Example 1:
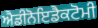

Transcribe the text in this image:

ਐਡੀਨੋਇਡੈਕਟੋਮੀ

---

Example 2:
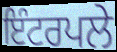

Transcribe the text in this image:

ਇੰਟਰਪਲੇ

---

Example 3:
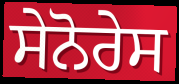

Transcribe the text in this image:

ਸੇਨੋਰੇਸ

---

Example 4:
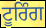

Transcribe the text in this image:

ਟੂਰਿੰਗ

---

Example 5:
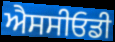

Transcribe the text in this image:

ਐਸਸੀਓਡੀ